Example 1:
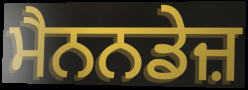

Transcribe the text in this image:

ਮੈਨਨਡੇਜ਼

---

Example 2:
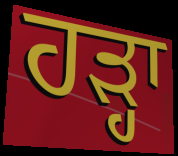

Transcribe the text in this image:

ਹੜ੍ਹਾ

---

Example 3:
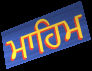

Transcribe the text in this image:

ਮਾਹਿਮ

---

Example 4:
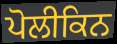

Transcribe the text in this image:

ਪੋਲੀਕਿਨ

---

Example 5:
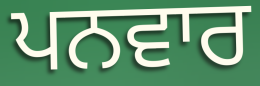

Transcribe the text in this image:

ਪਨਵਾਰ